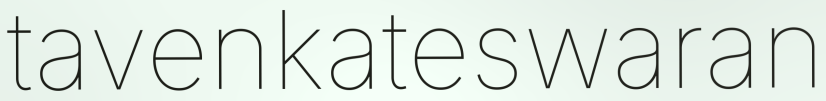
tavenkateswaran